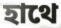
হাথে